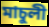
মাচুলী